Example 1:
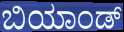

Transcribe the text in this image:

ಬಿಯಾಂಡ್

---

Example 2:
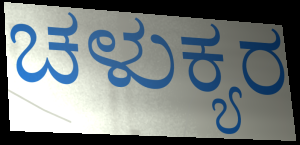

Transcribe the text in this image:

ಚಳುಕ್ಯರ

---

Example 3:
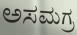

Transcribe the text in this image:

ಅಸಮಗ್ರ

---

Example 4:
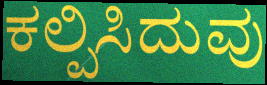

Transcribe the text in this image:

ಕಲ್ಪಿಸಿದುವು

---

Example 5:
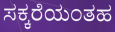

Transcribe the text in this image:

ಸಕ್ಕರೆಯಂತಹ